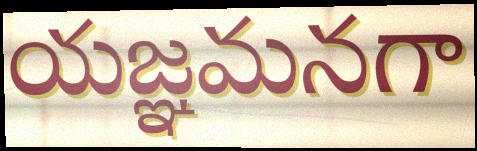
యజ్ఞమనగా